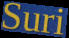
Suri